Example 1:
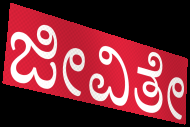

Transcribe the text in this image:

ಜೀವಿತೇ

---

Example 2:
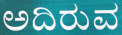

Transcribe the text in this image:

ಅದಿರುವ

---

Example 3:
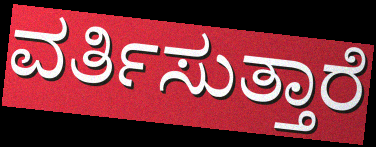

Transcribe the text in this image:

ವರ್ತಿಸುತ್ತಾರೆ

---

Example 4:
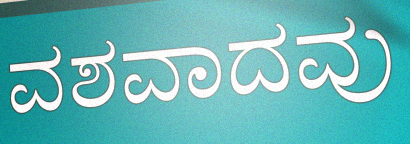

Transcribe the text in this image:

ವಶವಾದವು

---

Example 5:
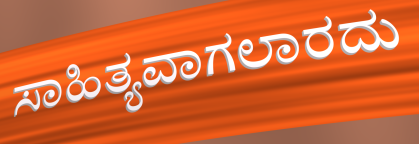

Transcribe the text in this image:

ಸಾಹಿತ್ಯವಾಗಲಾರದು